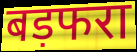
बड़फरा